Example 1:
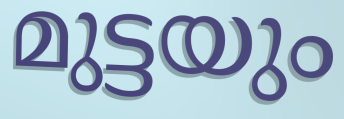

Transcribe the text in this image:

മുട്ടയും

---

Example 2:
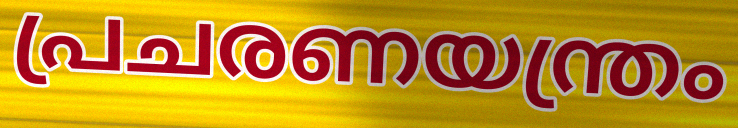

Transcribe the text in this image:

പ്രചരണയന്ത്രം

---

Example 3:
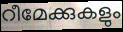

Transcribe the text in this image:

റീമേക്കുകളും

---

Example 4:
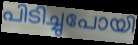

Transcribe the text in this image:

പിടിച്ചുപോയി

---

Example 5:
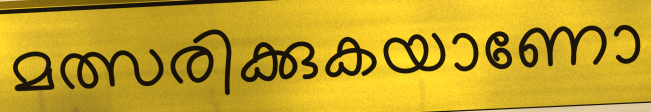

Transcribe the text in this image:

മത്സരിക്കുകയാണോ